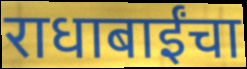
राधाबाईंचा